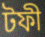
টফী